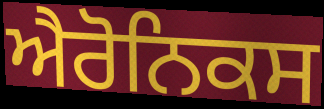
ਐਰੋਨਿਕਸ